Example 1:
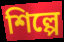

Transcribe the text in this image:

শিল্পে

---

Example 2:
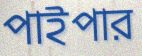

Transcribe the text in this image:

পাইপার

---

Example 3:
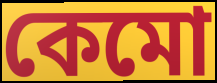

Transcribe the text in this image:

কেমো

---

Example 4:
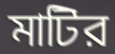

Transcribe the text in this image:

মাটির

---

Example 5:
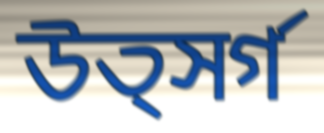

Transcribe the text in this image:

উত্সর্গ